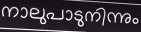
നാലുപാടുനിന്നും